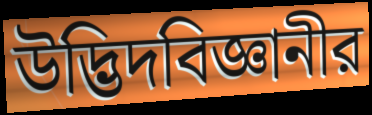
উদ্ভিদবিজ্ঞানীর